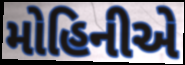
મોહિનીએ